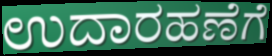
ಉದಾರಹಣೆಗೆ